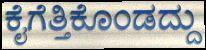
ಕೈಗೆತ್ತಿಕೊಂಡದ್ದು